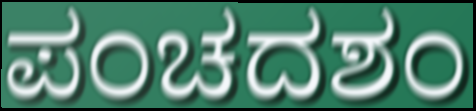
ಪಂಚದಶಂ